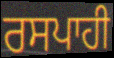
ਰਸਪਾਹੀ